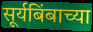
सूर्यबिंबाच्या